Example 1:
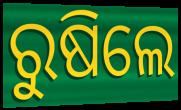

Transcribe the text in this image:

ରୁଷିଲେ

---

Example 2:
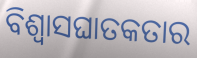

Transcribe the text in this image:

ବିଶ୍ଵାସଘାତକତାର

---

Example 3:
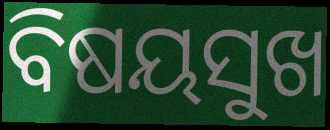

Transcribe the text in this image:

ବିଷୟସୁଖ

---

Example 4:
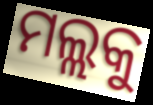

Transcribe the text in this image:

ମଲ୍ଲକୁ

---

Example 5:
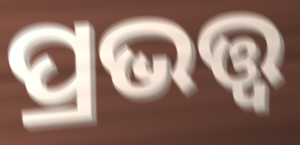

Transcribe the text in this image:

ପ୍ରଭତ୍ତ୍ଵ